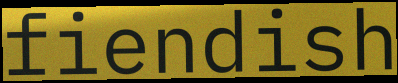
fiendish